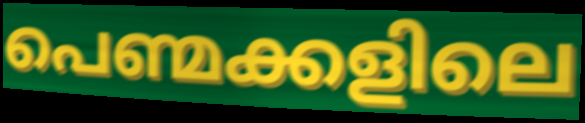
പെണ്മക്കളിലെ